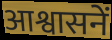
आश्वासनें